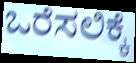
ಒರೆಸಲಿಕ್ಕೆ